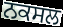
ਨਕਸਲ